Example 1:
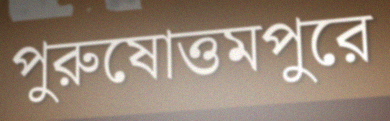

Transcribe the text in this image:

পুরুষোত্তমপুরে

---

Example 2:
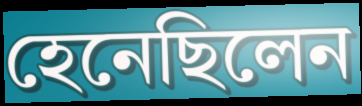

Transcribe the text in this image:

হেনেছিলেন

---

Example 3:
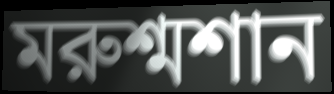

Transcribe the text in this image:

মরুশ্মশান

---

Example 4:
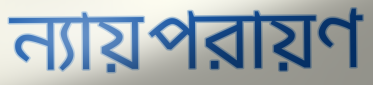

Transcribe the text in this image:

ন্যায়পরায়ণ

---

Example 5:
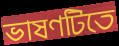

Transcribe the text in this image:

ভাষণটিতে